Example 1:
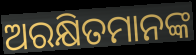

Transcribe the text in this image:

ଅରକ୍ଷିତମାନଙ୍କ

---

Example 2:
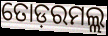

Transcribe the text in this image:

ତୋଡ଼ରମଲ୍ଲ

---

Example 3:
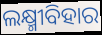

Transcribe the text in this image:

ଲକ୍ଷ୍ମୀବିହାର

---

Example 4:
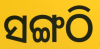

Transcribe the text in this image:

ସଙ୍ଗଠି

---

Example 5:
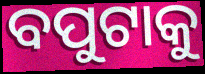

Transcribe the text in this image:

ବପୁଟାକୁ